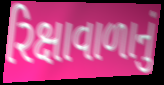
રિક્ષાવાળાનું